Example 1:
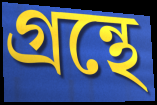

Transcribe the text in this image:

গ্রন্থে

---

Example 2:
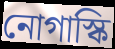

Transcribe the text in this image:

নোগাস্কি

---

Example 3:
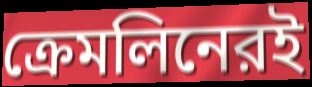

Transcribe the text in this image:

ক্রেমলিনেরই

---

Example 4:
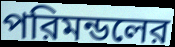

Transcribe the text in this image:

পরিমন্ডলের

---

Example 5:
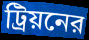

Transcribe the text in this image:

ট্রিয়নের